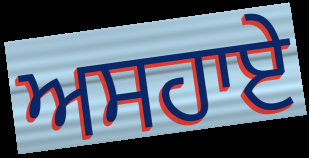
ਅਸਹਾਏ